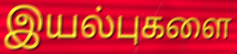
இயல்புகளை